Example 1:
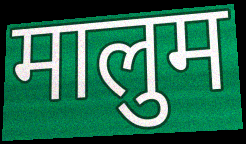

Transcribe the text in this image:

मालुम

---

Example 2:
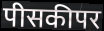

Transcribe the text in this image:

पीसकीपर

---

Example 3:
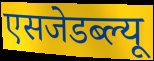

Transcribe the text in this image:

एसजेडब्ल्यू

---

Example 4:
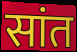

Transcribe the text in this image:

सांत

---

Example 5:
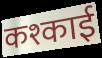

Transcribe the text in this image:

कश्काई